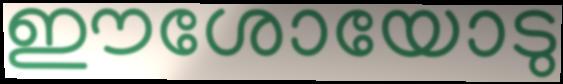
ഈശോയോടു